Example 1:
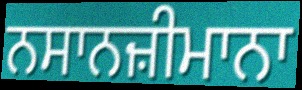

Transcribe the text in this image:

ਨਸਾਨਜ਼ੀਮਾਨਾ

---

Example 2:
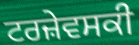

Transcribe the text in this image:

ਟਰਜ਼ੇਵਸਕੀ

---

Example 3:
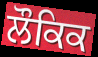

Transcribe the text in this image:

ਲੌਕਿਕ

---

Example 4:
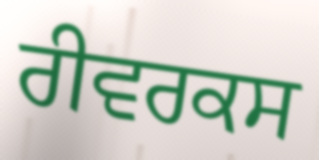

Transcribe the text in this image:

ਰੀਵਰਕਸ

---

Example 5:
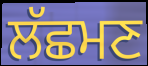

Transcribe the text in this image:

ਲੱਛਮਣ